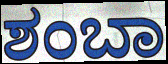
ಶಂಬಾ